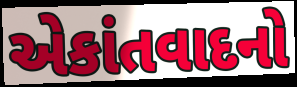
એકાંતવાદનો